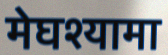
मेघश्यामा